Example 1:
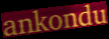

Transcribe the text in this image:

ankondu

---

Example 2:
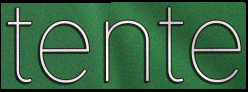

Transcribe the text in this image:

tente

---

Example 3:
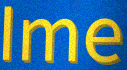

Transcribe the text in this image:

Ime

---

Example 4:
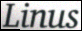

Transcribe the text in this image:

Linus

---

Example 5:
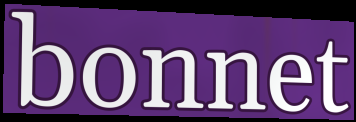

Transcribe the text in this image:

bonnet